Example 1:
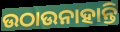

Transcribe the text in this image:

ଉଠାଉନାହାନ୍ତି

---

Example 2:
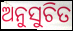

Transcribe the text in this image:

ଅନୁସୁଚିତ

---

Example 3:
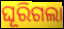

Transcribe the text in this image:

ଘୂରିଗଲା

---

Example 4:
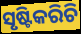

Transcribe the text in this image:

ସୃଷ୍ଟିକରିଚି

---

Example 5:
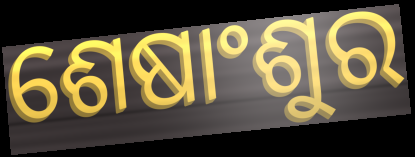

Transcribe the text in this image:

ଶେଷାଂଶୁର